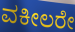
ವಕೀಲರೇ